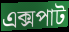
এক্সপাট